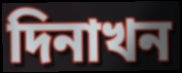
দিনাখন